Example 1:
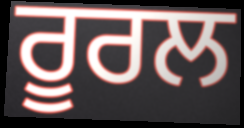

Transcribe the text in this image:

ਰੂਰਲ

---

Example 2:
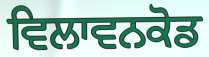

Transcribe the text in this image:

ਵਿਲਾਵਨਕੋਡ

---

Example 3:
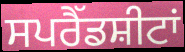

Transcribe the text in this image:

ਸਪਰੈੱਡਸ਼ੀਟਾਂ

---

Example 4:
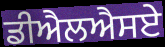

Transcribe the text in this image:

ਡੀਐਲਐਸਏ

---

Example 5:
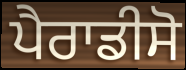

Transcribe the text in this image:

ਪੈਰਾਡੀਸੋ